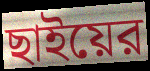
ছাইয়ের